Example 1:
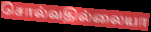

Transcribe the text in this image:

சொல்வதில்லையா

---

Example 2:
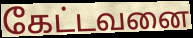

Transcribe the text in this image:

கேட்டவனை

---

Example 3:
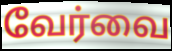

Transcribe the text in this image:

வேர்வை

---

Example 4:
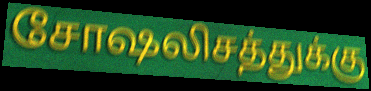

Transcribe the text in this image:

சோஷலிசத்துக்கு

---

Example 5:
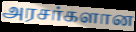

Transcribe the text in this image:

அரசர்களான